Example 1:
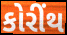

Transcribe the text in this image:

કોરીંથ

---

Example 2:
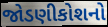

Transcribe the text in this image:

જોડણીકોશનો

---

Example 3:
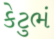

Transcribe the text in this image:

કેટુભં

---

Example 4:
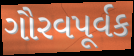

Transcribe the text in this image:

ગૌરવપૂર્વક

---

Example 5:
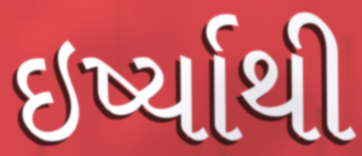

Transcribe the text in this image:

ઇર્ષ્યાથી